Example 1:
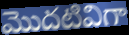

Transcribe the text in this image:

మొదటివిగా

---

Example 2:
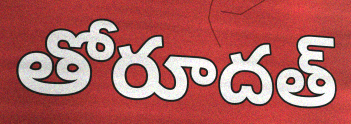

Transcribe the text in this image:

తోరూదత్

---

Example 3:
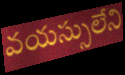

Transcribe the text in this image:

వయస్సులేని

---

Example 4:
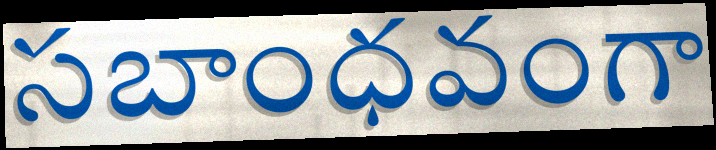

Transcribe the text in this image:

సబాంధవంగా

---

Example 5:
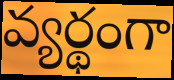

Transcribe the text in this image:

వ్యర్థంగా